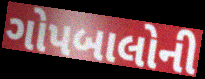
ગોપબાલોની